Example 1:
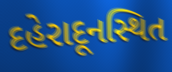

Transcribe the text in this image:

દહેરાદૂનસ્થિત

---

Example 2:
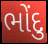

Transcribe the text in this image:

ભોંદુ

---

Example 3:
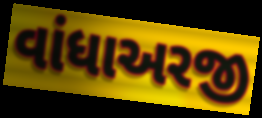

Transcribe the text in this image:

વાંધાઅરજી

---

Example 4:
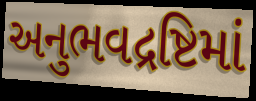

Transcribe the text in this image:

અનુભવદ્રષ્ટિમાં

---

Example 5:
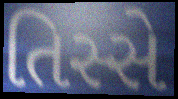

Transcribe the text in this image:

તિસ્સે